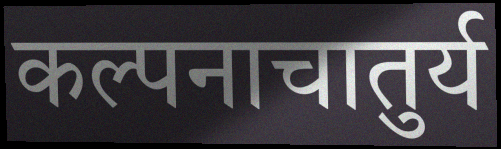
कल्पनाचातुर्य